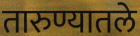
तारुण्यातले